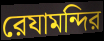
রেযামন্দির